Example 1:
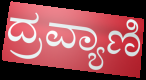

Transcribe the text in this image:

ದ್ರವ್ಯಾಣಿ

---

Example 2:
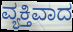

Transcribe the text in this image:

ವ್ಯಕ್ತಿವಾದ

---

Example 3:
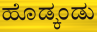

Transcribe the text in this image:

ಹೊಡ್ಕಂಡು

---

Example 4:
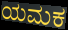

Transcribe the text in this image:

ಯಮಕ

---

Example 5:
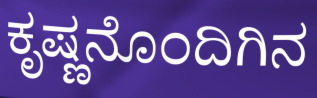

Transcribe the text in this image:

ಕೃಷ್ಣನೊಂದಿಗಿನ